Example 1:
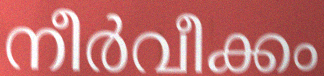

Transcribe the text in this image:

നീർവീക്കം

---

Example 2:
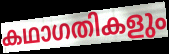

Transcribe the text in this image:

കഥാഗതികളും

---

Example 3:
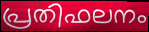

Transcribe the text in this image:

പ്രതിഫലനം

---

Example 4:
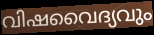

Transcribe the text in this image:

വിഷവൈദ്യവും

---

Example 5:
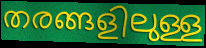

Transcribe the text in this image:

തരങ്ങളിലുള്ള